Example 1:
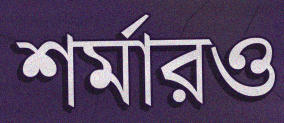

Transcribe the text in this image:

শর্মারও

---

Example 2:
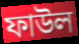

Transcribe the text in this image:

ফাউল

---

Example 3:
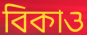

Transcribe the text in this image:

বিকাও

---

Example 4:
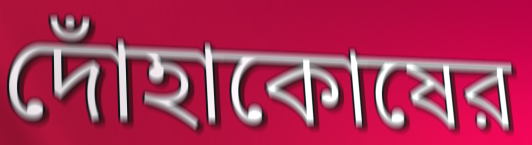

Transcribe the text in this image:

দোঁহাকোষের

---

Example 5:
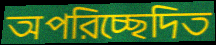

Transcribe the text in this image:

অপরিচ্ছেদিত